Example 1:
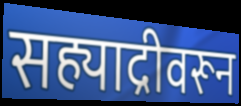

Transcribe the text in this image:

सह्याद्रीवरून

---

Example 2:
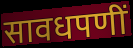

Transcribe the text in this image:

सावधपणीं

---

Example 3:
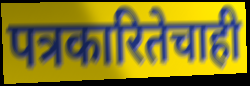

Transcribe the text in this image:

पत्रकारितेचाही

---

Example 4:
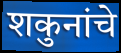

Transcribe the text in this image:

शकुनांचे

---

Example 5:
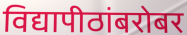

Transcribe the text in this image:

विद्यापीठांबरोबर